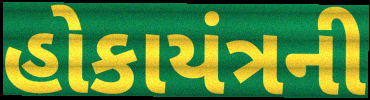
હોકાયંત્રની